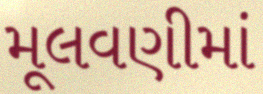
મૂલવણીમાં